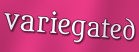
variegated